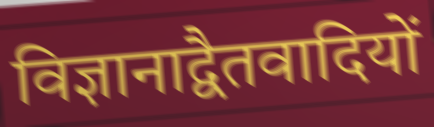
विज्ञानाद्वैतवादियों